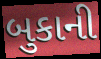
બુકાની